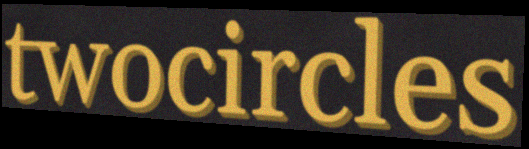
twocircles